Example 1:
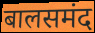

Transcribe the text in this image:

बालसमंद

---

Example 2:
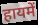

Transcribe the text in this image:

हायमें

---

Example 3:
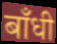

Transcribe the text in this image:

बाँधी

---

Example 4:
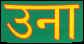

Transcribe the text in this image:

उना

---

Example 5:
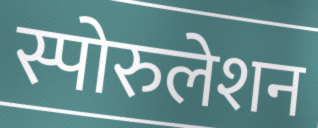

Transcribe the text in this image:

स्पोरुलेशन